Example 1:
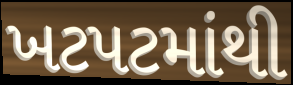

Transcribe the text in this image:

ખટપટમાંથી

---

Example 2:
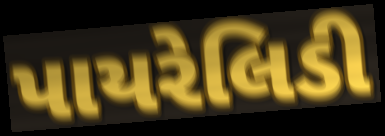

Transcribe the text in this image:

પાયરેલિડી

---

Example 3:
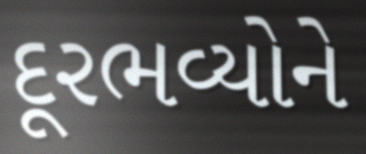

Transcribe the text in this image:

દૂરભવ્યોને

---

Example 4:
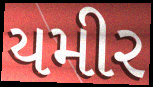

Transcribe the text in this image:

યમીર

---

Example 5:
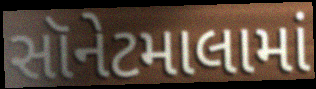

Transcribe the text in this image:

સૉનેટમાલામાં